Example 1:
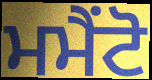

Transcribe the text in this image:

ਮਮੈਂਟੋ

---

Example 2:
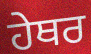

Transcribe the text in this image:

ਹੇਥਰ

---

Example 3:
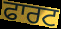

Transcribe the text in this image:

ਫਾਰਟ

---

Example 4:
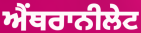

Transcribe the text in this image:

ਐਂਥਰਾਨੀਲੇਟ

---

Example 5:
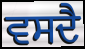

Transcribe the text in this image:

ਵਸਦੈ